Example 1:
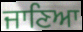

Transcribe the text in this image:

ਜਾਣਿਆ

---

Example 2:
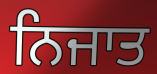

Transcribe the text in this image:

ਨਿਜਾਤ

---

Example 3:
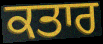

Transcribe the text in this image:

ਕਤਾਰ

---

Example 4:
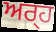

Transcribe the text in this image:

ਅਰ੍‍ਹ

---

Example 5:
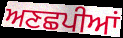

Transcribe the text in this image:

ਅਣਛਪੀਆਂ